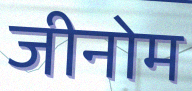
जीनोम